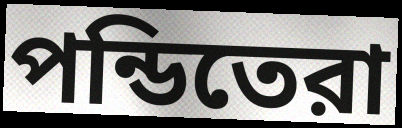
পন্ডিতেরা